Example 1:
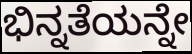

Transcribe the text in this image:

ಭಿನ್ನತೆಯನ್ನೇ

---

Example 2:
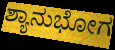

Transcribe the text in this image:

ಶ್ಯಾನುಭೋಗ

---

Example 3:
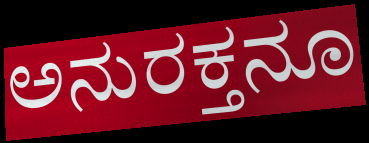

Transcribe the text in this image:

ಅನುರಕ್ತನೂ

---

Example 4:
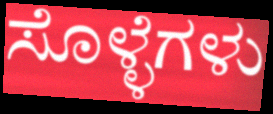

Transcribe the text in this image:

ಸೊಳ್ಳೆಗಳು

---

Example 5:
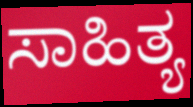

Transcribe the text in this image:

ಸಾಹಿತ್ಯ